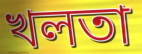
খলতা